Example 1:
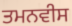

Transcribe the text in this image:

ਤਮਨਵੀਸ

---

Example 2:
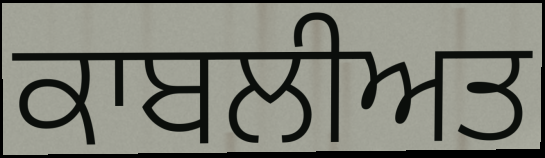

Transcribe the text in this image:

ਕਾਬਲੀਅਤ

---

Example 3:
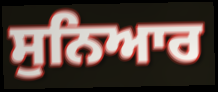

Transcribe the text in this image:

ਸੁਨਿਆਰ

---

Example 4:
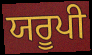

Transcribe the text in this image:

ਯਰੂਪੀ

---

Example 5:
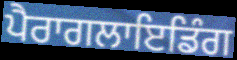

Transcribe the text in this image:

ਪੈਰਾਗਲਾਇਡਿੰਗ